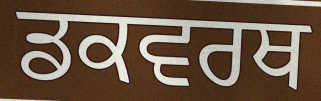
ਡਕਵਰਥ